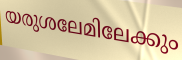
യരുശലേമിലേക്കും